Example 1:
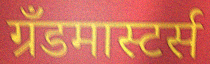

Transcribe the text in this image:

ग्रँडमास्टर्स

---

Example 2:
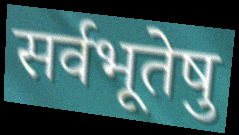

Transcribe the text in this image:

सर्वभूतेषु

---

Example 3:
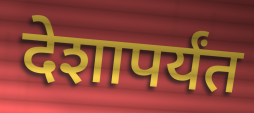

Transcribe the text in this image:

देशापर्यंत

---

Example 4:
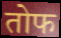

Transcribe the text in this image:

तोफ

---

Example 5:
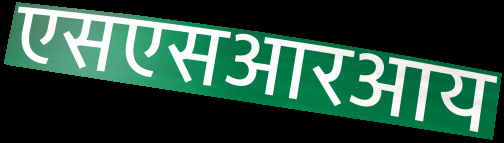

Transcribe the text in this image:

एसएसआरआय